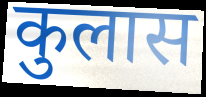
कुलास